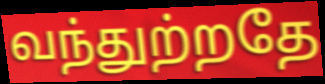
வந்துற்றதே